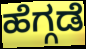
ಹೆಗ್ಗಡೆ